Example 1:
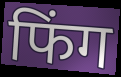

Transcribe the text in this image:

फिंग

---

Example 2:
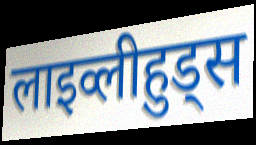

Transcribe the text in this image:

लाइव्लीहुड्स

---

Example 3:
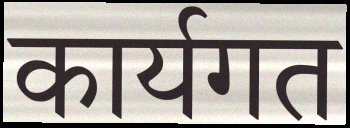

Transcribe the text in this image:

कार्यगत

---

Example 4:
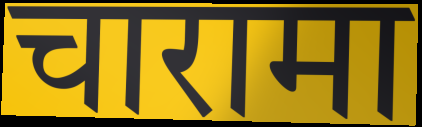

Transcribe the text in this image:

चारामा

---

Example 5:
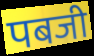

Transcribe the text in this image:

पबजी